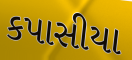
કપાસીયા